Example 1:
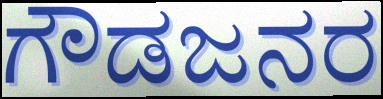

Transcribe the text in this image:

ಗೌಡಜನರ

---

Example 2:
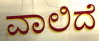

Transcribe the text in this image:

ವಾಲಿದೆ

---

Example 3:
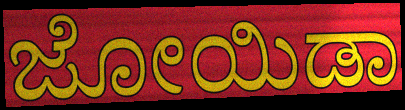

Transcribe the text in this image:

ಜೋಯಿಡಾ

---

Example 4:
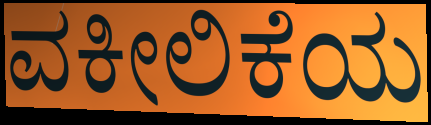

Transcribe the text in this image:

ವಕೀಲಿಕೆಯ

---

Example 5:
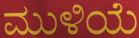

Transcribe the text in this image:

ಮುಳಿಯೆ